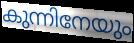
കുന്നിനേയും